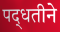
पद्‍धतीने